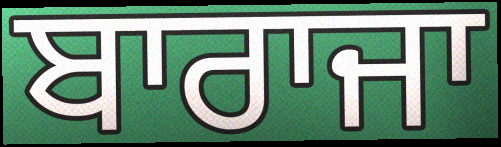
ਬਾਰਾਜਾ